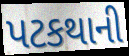
પટકથાની